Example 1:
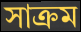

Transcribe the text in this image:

সাক্রম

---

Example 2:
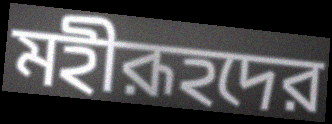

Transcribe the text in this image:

মহীরূহদের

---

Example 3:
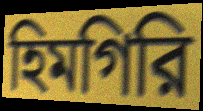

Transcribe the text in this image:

হিমগিরি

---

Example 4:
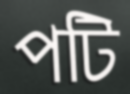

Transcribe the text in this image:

পটি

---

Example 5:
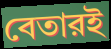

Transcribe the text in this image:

বেতারই